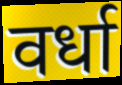
वर्धा